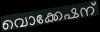
വൊക്കേഷന്